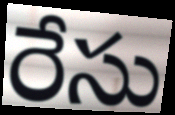
రేసు